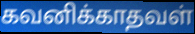
கவனிக்காதவள்